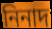
নিনাদ